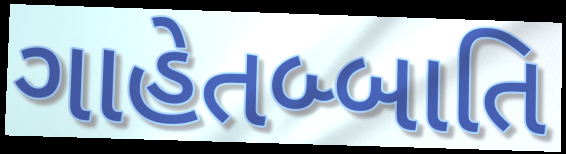
ગાહેતબ્બાતિ